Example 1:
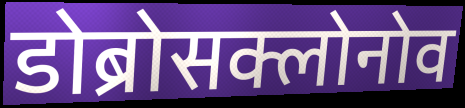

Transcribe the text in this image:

डोब्रोसक्लोनोव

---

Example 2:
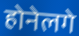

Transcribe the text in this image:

होनेलगे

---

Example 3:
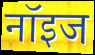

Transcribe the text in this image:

नॉइज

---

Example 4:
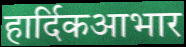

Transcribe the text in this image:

हार्दिकआभार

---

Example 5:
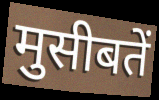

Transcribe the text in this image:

मुसीबतें